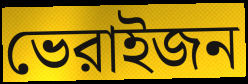
ভেরাইজন